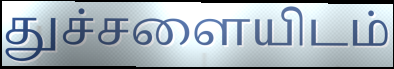
துச்சளையிடம்